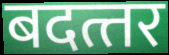
बदत्‍तर